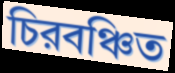
চিরবঞ্চিত